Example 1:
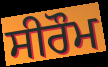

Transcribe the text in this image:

ਸੀਰੌਮ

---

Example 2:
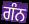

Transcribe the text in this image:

ਗੰਨ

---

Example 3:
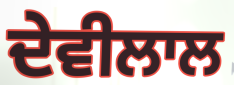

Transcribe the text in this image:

ਦੇਵੀਲਾਲ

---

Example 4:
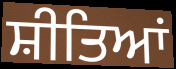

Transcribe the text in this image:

ਸ਼ੀਤਿਆਂ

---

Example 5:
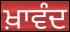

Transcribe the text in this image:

ਖ਼ਾਵੰਦ